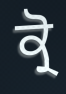
ਕ੍ਰੋ